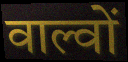
वाल्वों